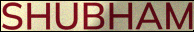
SHUBHAM